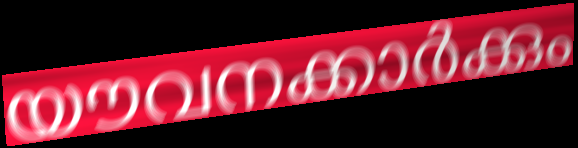
യൗവനക്കാർക്കും